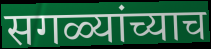
सगळ्यांच्याच